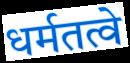
धर्मतत्वे